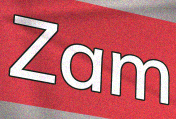
Zam